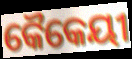
କୈକେୟୀ